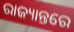
ରାଜ୍ୟାନ୍ତରେ